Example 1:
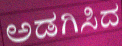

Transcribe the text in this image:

ಅಡಗಿಸಿದ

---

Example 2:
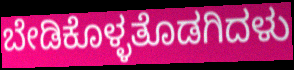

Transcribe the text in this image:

ಬೇಡಿಕೊಳ್ಳತೊಡಗಿದಳು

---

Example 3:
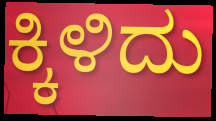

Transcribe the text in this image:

ಕ್ಕಿಳಿದು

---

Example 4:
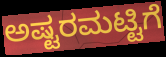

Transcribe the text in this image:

ಅಷ್ಟರಮಟ್ಟಿಗೆ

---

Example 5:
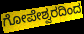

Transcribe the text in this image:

ಗೋಪೇಶ್ವರದಿಂದ